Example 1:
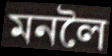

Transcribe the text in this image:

মনলৈ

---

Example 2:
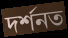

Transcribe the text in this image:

দৰ্শনত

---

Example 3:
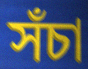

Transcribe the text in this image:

সঁচা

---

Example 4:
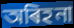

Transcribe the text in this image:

অৰিহনা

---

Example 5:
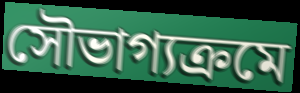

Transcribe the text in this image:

সৌভাগ্যক্ৰমে